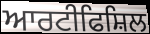
ਆਰਟੀਫਿਸ਼ਿਲ